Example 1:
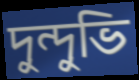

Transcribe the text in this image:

দুন্দুভি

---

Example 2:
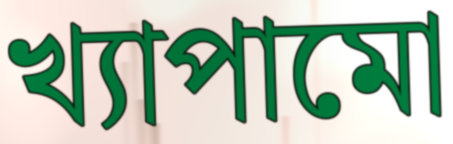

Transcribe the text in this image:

খ্যাপামো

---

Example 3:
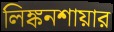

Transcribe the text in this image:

লিঙ্কনশায়ার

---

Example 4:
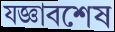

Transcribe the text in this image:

যজ্ঞাবশেষ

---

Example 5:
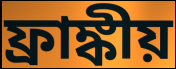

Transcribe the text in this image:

ফ্রাঙ্কীয়